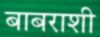
बाबराशी